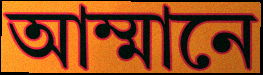
আম্মানে